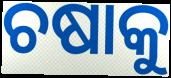
ଚଷାକୁ